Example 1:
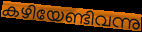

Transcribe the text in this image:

കഴിയേണ്ടിവന്നു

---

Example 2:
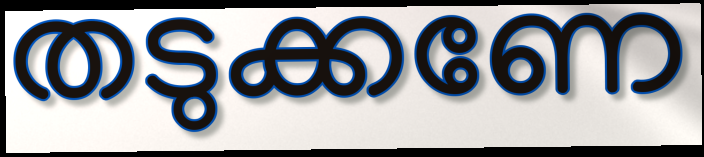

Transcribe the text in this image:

തടുക്കണേ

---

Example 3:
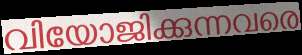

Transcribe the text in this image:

വിയോജിക്കുന്നവരെ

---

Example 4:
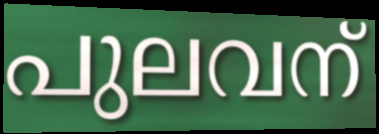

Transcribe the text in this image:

പുലവന്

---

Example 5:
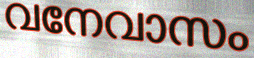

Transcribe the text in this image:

വനേവാസം